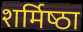
शर्मिष्‍ठा